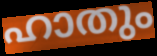
ഹാതും